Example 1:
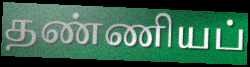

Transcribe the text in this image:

தண்ணியப்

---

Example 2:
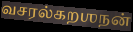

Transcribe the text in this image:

வசரல்கறஶநன்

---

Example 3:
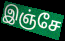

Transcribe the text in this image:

இஞ்சே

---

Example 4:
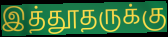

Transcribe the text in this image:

இத்தூதருக்கு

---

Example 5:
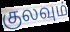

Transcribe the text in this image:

குலவும்